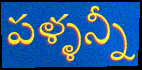
పళ్ళన్నీ